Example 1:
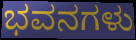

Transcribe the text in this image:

ಭವನಗಳು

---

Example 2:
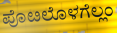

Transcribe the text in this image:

ಪೊೞಲೊಳಗೆಲ್ಲಂ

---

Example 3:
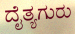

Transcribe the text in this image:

ದೈತ್ಯಗುರು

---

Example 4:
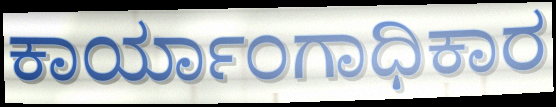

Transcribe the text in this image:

ಕಾರ್ಯಾಂಗಾಧಿಕಾರ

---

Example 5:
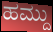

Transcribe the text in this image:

ಹಮ್ದು